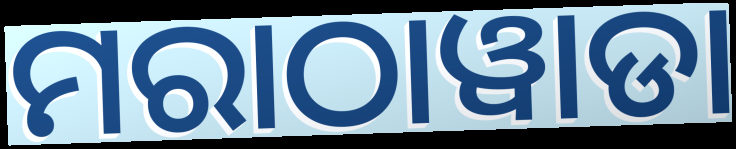
ମରାଠାୱାଡା